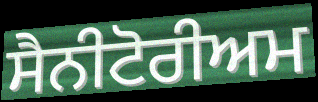
ਸੈਨੀਟੋਰੀਅਮ